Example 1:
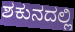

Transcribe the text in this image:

ಶಕುನದಲ್ಲಿ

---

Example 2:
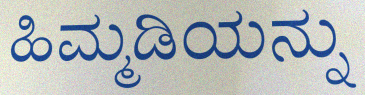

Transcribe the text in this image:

ಹಿಮ್ಮಡಿಯನ್ನು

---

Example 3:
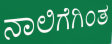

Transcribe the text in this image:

ನಾಲಿಗೆಗಿಂತ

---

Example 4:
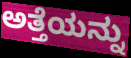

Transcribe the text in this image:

ಅತ್ತೆಯನ್ನು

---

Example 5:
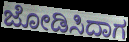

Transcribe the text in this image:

ಜೋಡಿಸಿದಾಗ